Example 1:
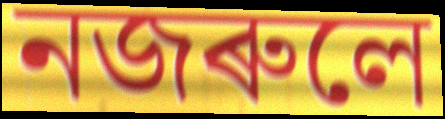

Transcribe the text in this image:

নজৰুলে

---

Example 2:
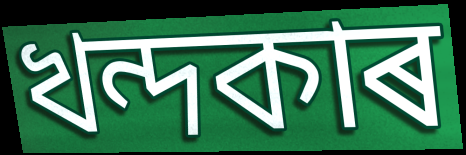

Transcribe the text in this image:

খন্দকাৰ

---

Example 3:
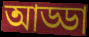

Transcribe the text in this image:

আড্ডা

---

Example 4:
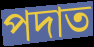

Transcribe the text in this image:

পদাত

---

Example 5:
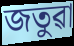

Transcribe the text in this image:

জতুৱা